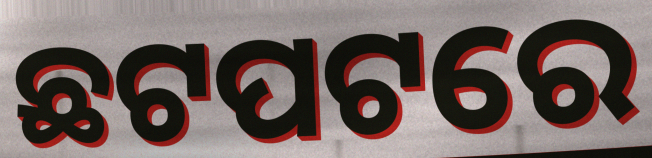
ଛଟପଟରେ